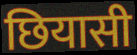
छियासी